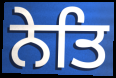
ਨੇਤਿ